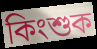
কিংশুক